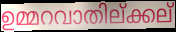
ഉമ്മറവാതില്ക്കല്